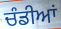
ਚੰਡੀਆਂ